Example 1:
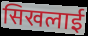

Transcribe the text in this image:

सिखलाई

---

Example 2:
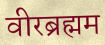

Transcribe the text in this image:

वीरब्रह्मम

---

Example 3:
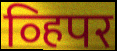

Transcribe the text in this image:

व्हिपर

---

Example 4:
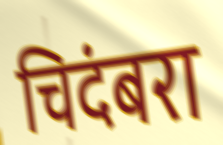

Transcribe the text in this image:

चिदंबरा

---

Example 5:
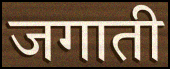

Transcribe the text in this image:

जगाती